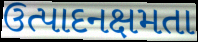
ઉત્પાદનક્ષમતા